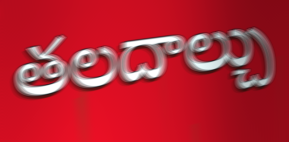
తలదాల్చు